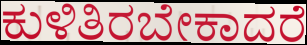
ಕುಳಿತಿರಬೇಕಾದರೆ